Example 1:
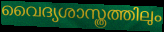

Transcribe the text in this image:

വൈദ്യശാസ്ത്രത്തിലും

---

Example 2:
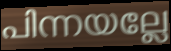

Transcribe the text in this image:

പിന്നയല്ലേ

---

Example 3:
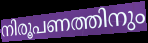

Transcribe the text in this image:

നിരൂപണത്തിനും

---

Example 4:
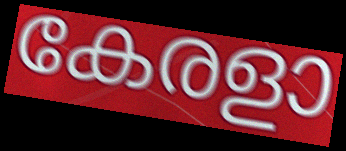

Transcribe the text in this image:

കേരളാ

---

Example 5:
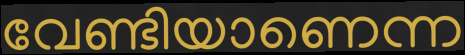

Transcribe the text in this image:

വേണ്ടിയാണെന്ന